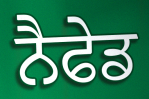
ਨੈਫੇਡ